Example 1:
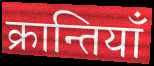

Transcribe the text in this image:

क्रान्तियाँ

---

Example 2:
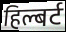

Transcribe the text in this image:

हिल्बर्ट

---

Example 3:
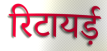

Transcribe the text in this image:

रिटायर्ड़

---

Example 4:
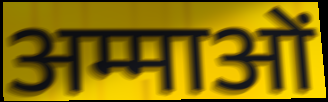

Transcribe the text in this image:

अम्माओं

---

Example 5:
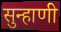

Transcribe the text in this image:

सुन्हाणी